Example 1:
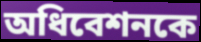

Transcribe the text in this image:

অধিবেশনকে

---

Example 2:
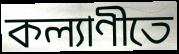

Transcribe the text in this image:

কল্যাণীতে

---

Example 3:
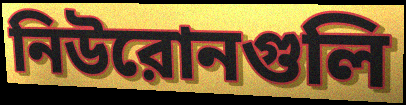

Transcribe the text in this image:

নিউরোনগুলি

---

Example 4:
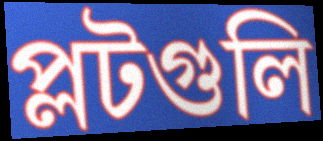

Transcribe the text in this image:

প্লটগুলি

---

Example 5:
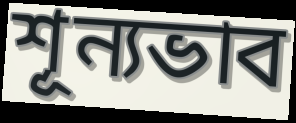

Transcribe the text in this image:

শূন্যভাব